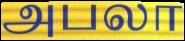
அபலா